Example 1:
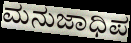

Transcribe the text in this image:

ಮನುಜಾಧಿಪ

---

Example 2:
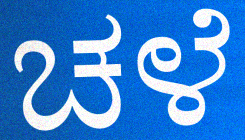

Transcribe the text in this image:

ಚಳೆ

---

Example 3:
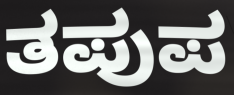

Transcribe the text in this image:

ತಪುಪ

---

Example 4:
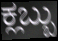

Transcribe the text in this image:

ಕ್ಲಬ್ಬು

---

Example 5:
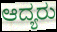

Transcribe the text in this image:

ಆದ್ಯರು